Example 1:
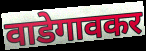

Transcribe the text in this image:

वाडेगावकर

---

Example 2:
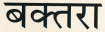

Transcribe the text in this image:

बक्तरा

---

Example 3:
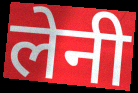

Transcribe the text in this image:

लेनी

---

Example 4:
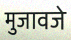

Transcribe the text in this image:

मुजावजे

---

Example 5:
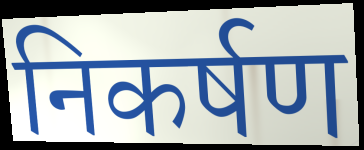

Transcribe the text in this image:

निकर्षण